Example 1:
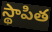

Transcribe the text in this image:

స్థాపిత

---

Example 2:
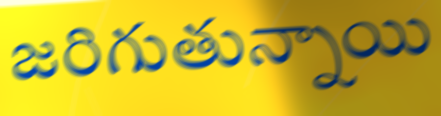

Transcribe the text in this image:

జరిగుతున్నాయి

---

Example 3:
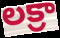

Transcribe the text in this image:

లక్రా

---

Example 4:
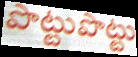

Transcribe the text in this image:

పొట్టుపొట్టు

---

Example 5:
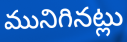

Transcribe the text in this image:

మునిగినట్లు